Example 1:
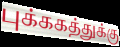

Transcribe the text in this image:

புக்ககத்துக்கு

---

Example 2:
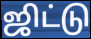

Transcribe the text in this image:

ஜிட்டு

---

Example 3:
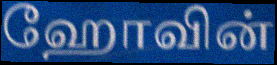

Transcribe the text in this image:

ஹோவின்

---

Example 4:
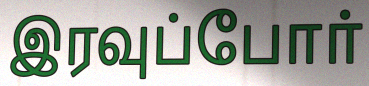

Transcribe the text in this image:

இரவுப்போர்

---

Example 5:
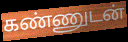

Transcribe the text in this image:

கண்ணுடன்